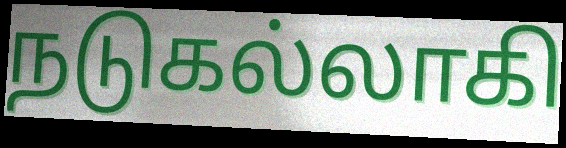
நடுகல்லாகி